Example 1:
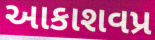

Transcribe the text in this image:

આકાશવપ્ર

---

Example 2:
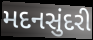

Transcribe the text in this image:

મદનસુંદરી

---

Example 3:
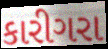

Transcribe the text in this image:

કારીગરા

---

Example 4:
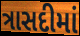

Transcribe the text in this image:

ત્રાસદીમાં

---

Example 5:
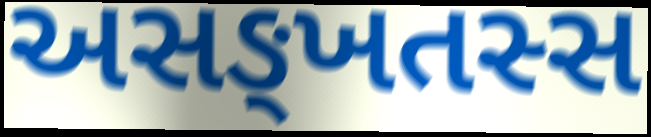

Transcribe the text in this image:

અસઙ્ખતસ્સ